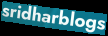
sridharblogs